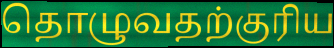
தொழுவதற்குரிய